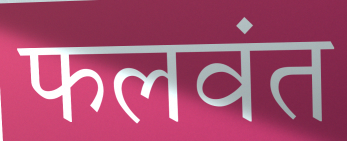
फलवंत